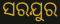
ସରଯୁର